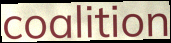
coalition